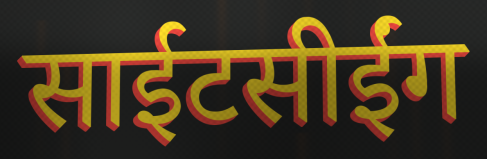
साईटसीईंग